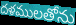
దళములతోను